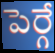
పెర్గే